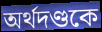
অর্থদণ্ডকে